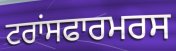
ਟਰਾਂਸਫਾਰਮਰਸ